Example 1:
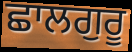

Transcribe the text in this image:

ਛਾਲਗੁਰੂ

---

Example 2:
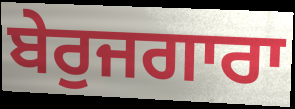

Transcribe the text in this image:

ਬੇਰੁਜਗਾਰਾ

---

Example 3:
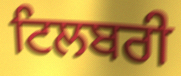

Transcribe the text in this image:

ਟਿਲਬਰੀ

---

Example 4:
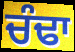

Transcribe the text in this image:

ਚੰਢਾ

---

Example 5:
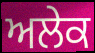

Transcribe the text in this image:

ਅਲੇਕ